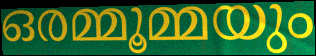
ഒരമ്മൂമ്മയും